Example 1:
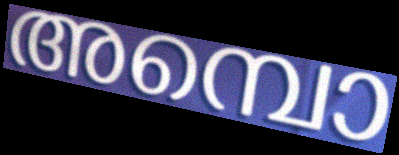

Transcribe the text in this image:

അമ്പൊ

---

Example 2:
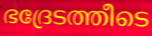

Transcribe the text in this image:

ഭദ്രേടത്തീടെ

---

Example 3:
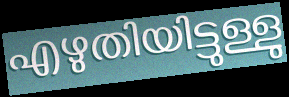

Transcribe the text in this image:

എഴുതിയിട്ടുള്ളു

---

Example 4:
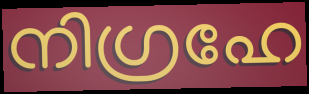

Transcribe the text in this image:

നിഗ്രഹേ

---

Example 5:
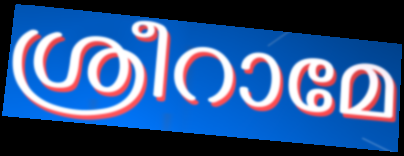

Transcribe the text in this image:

ശ്രീറാമേ